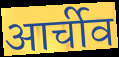
आर्चीव